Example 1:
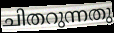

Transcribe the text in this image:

ചിതറുന്നതു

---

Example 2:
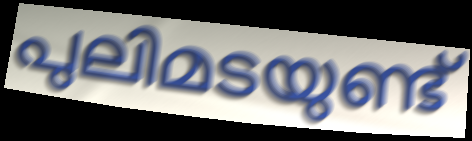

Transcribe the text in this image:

പുലിമടയുണ്ട്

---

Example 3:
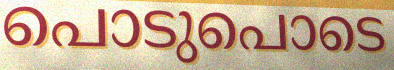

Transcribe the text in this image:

പൊടുപൊടെ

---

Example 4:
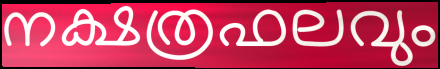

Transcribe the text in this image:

നക്ഷത്രഫലവും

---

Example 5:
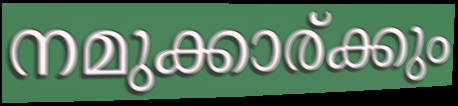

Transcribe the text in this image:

നമുക്കാര്ക്കും